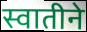
स्वातीने